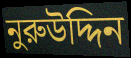
নুরুউদ্দিন